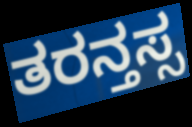
ತರನ್ತಸ್ಸ